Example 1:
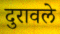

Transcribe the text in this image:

दुरावले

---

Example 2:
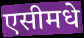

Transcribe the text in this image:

एसीमधे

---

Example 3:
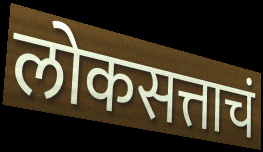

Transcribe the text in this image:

लोकसत्ताचं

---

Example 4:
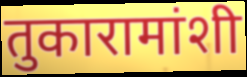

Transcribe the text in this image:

तुकारामांशी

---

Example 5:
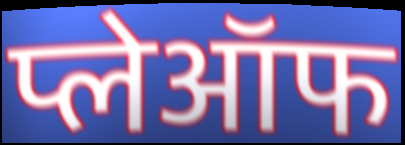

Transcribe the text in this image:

प्लेऑफ